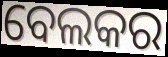
ବେଲକର